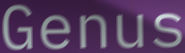
Genus